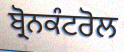
ਬ੍ਰੋਨਕੰਟਰੋਲ